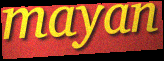
mayan